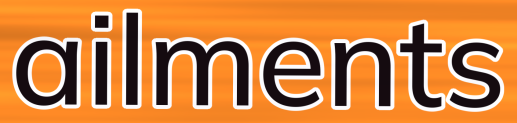
ailments